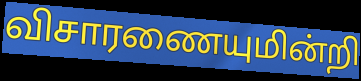
விசாரணையுமின்றி